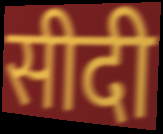
सीदी